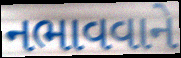
નભાવવાને